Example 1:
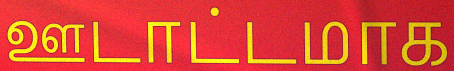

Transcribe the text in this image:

ஊடாட்டமாக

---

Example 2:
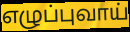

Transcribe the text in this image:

எழுப்புவாய்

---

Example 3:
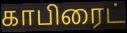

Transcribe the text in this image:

காபிரைட்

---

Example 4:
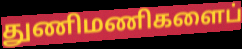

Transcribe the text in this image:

துணிமணிகளைப்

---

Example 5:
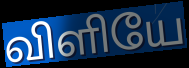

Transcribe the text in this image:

விளியே